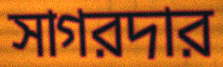
সাগরদার